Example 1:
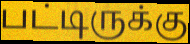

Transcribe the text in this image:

பட்டிருக்கு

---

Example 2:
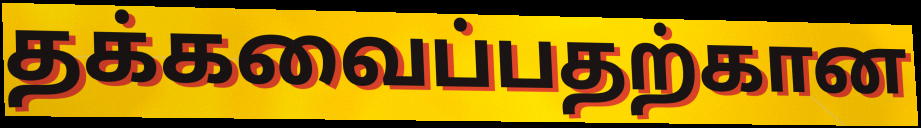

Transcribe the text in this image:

தக்கவைப்பதற்கான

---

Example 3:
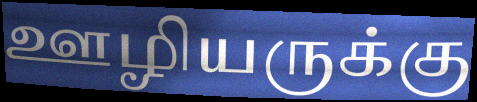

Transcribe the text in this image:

ஊழியருக்கு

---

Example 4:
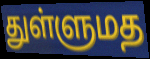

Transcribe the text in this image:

துள்ளுமத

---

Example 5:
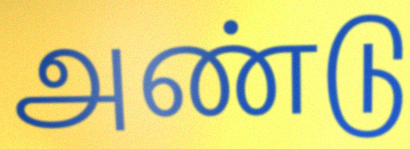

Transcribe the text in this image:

அண்டு